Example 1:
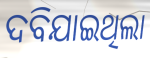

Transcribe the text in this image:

ଦବିଯାଇଥିଲା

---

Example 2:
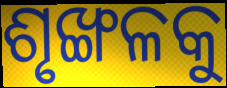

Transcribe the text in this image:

ଶୃଙ୍ଖଳକୁ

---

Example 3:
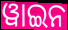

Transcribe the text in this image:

ୱାଇନ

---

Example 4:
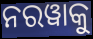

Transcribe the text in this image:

ନରୱାକୁ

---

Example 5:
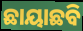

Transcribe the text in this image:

ଛାୟାଛବି